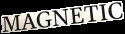
MAGNETIC